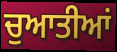
ਚੁਆਤੀਆਂ